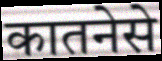
कातनेसे